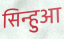
सिन्हुआ